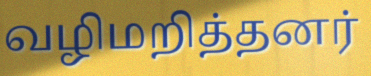
வழிமறித்தனர்